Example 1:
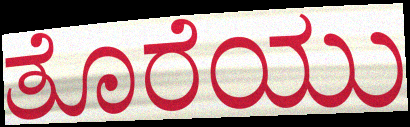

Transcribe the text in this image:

ತೊರೆಯು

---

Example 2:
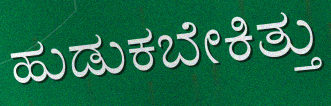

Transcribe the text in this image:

ಹುಡುಕಬೇಕಿತ್ತು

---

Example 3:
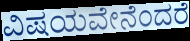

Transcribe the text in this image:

ವಿಷಯವೇನೆಂದರೆ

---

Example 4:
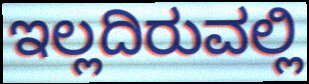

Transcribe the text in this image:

ಇಲ್ಲದಿರುವಲ್ಲಿ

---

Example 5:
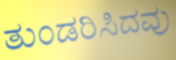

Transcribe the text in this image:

ತುಂಡರಿಸಿದವು